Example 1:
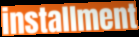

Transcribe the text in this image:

installment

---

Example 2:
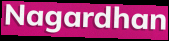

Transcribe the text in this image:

Nagardhan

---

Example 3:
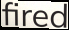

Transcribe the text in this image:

fired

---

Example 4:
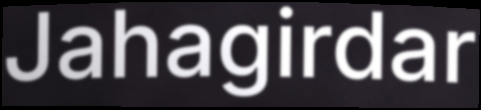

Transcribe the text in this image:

Jahagirdar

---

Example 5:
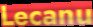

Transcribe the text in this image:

Lecanu